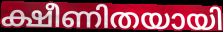
ക്ഷീണിതയായി